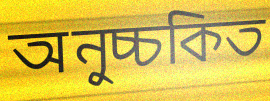
অনুচ্চকিত